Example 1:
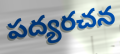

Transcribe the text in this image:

పద్యరచన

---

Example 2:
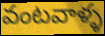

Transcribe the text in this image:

వంటవాళ్ళ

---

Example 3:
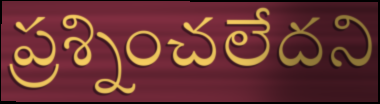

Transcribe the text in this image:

ప్రశ్నించలేదని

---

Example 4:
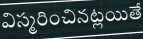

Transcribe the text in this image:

విస్మరించినట్లయితే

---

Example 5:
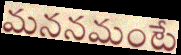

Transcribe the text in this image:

మననమంటే